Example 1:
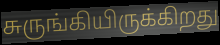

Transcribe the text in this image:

சுருங்கியிருக்கிறது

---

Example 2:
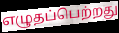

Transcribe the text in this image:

எழுதப்பெற்றது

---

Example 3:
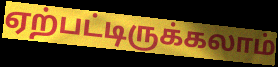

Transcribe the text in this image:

ஏற்பட்டிருக்கலாம்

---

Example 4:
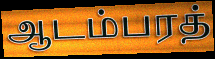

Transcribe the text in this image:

ஆடம்பரத்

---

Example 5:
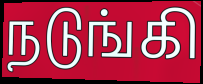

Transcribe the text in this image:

நடுங்கி